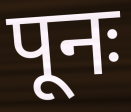
पूनः